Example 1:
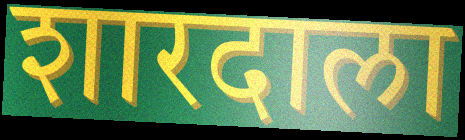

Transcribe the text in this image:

शारदाला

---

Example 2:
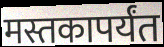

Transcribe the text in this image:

मस्तकापर्यंत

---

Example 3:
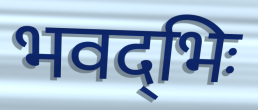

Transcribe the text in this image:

भवद्‌भिः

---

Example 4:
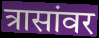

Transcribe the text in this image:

त्रासांवर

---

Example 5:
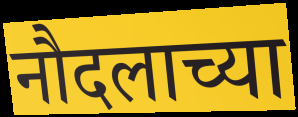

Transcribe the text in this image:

नौदलाच्या